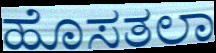
ಹೊಸತಲಾ